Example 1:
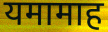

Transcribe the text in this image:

यमामाह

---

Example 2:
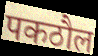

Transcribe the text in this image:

पकठौल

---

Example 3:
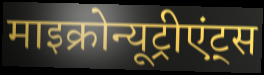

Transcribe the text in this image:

माइक्रोन्यूट्रीएंट्स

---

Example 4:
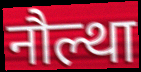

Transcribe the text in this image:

नौल्था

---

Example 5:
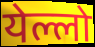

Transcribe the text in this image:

येल्लो